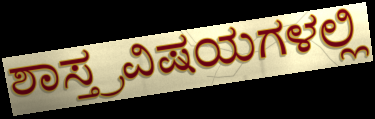
ಶಾಸ್ತ್ರವಿಷಯಗಳಲ್ಲಿ